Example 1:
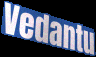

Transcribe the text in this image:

Vedantu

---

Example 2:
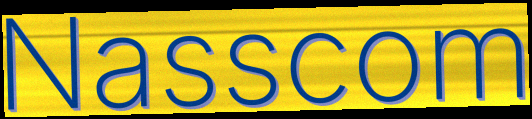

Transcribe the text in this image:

Nasscom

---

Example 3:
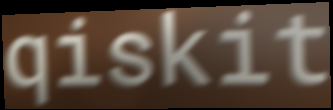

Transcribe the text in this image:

qiskit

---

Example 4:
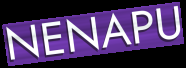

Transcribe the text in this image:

NENAPU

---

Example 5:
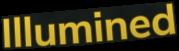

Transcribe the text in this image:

Illumined